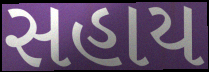
સહાય